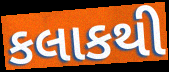
કલાકથી